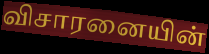
விசாரனையின்